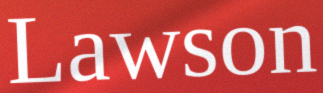
Lawson